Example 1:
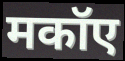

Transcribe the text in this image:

मकॉए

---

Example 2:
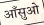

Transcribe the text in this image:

आँसुओ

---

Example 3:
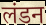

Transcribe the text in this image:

लंडन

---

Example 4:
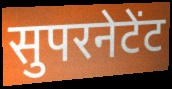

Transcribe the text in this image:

सुपरनेटेंट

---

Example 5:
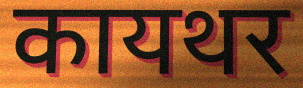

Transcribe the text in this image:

कायथर